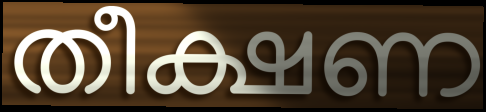
തീക്ഷണ